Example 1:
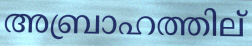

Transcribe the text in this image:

അബ്രാഹത്തില്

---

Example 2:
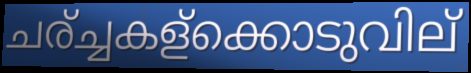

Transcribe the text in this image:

ചര്ച്ചകള്ക്കൊടുവില്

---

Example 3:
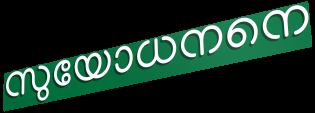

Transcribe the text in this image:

സുയോധനനെ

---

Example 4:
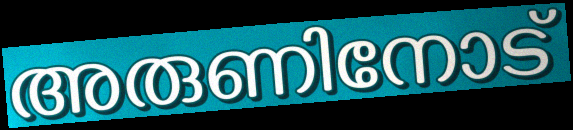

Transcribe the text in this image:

അരുണിനോട്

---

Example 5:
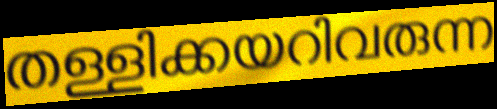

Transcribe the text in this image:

തള്ളിക്കയറിവരുന്ന